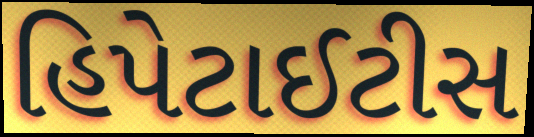
હિપેટાઈટીસ